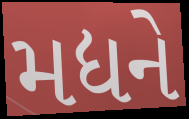
મદ્યને